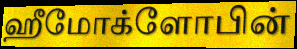
ஹீமோக்ளோபின்